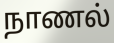
நாணல்